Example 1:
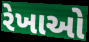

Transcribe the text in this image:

રેખાઓ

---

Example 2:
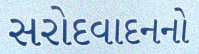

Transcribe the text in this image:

સરોદવાદનનો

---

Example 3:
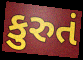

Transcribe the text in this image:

કુરુતં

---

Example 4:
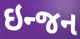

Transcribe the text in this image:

ઇન્જન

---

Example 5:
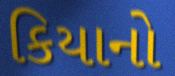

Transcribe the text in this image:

કિયાનો